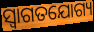
ସ୍ବାଗତଯୋଗ୍ୟ